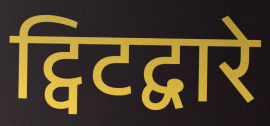
ट्विटद्वारे